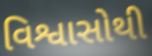
વિશ્વાસોથી